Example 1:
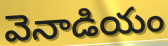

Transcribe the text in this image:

వెనాడియం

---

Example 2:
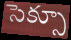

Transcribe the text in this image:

సెక్సూ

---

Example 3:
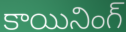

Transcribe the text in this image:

కాయినింగ్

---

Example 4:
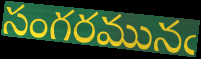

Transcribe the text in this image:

సంగరమునఁ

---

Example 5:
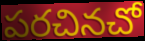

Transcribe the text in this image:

పరచినచో